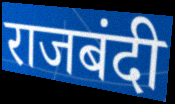
राजबंदी